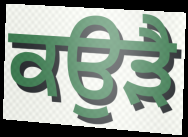
ਕਉੜੈ